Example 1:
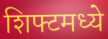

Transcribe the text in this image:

शिफ्टमध्ये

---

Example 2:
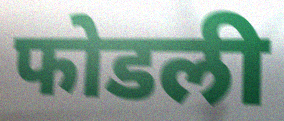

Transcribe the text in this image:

फोडली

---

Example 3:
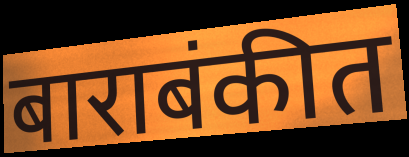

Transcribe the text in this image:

बाराबंकीत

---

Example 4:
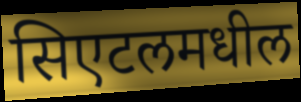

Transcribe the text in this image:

सिएटलमधील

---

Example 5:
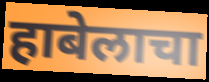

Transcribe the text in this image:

हाबेलाचा